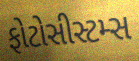
ફોટોસીસ્ટમ્સ